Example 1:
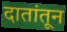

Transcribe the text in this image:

दातांतून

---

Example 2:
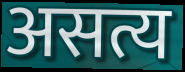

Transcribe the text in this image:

असत्य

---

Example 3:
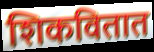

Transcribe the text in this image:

शिकवितात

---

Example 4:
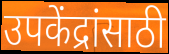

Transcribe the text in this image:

उपकेंद्रांसाठी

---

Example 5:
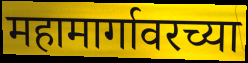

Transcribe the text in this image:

महामार्गावरच्या